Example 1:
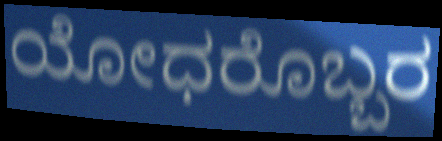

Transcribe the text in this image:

ಯೋಧರೊಬ್ಬರ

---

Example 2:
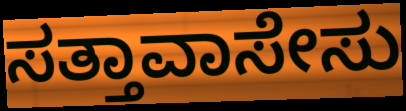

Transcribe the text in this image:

ಸತ್ತಾವಾಸೇಸು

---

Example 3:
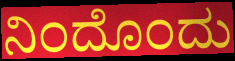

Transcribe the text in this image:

ನಿಂದೊಂದು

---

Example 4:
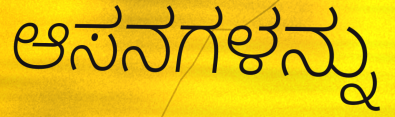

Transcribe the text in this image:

ಆಸನಗಳನ್ನು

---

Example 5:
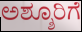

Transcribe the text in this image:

ಅಶ್ಶೂರಿಗೆ